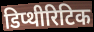
डिप्थीरिटिक